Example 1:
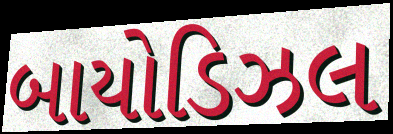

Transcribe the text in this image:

બાયોડિઝલ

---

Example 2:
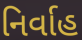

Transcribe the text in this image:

નિર્વાહ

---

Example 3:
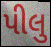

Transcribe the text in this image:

પીલુ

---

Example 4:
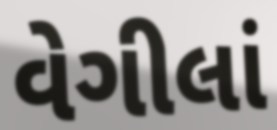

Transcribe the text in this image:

વેગીલાં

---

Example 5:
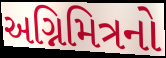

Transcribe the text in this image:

અગ્નિમિત્રનો